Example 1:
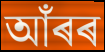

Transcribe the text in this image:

আঁৰৰ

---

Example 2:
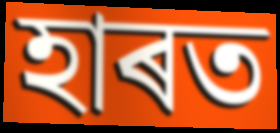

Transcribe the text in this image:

হাৰত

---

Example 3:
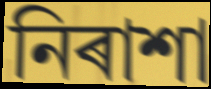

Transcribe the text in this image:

নিৰাশা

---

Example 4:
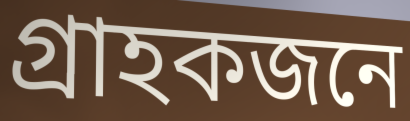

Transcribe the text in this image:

গ্ৰাহকজনে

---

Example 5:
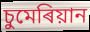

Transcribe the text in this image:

চুমেৰিয়ান